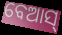
ବେଆସ୍